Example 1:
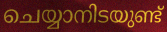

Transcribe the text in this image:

ചെയ്യാനിടയുണ്ട്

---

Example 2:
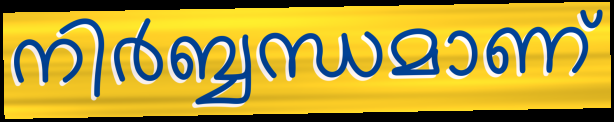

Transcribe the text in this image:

നിർബ്ബന്ധമാണ്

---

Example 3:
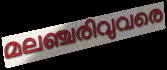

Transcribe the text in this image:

മലഞ്ചരിവുവരെ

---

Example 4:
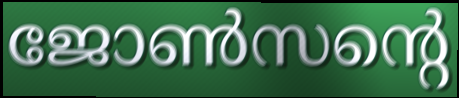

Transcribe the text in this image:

ജോൺസന്റെ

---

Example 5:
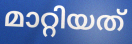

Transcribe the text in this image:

മാറ്റിയത്